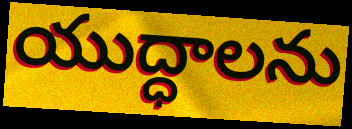
యుద్ధాలను